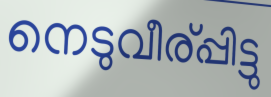
നെടുവീര്പ്പിട്ടു